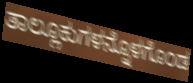
ತಾಲ್ಲೂಕುಗಳನ್ನೊಳಗೊಂಡ